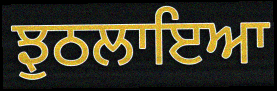
ਝੁਠਲਾਇਆ